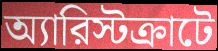
অ্যারিস্টক্রাটে